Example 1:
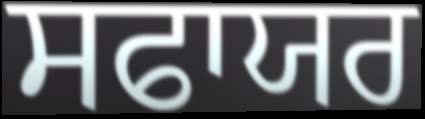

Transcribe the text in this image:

ਸਫਾਯਰ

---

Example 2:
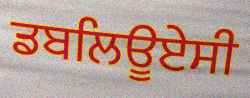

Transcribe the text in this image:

ਡਬਲਿਊਏਸੀ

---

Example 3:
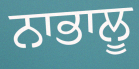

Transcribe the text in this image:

ਨਾਭਾਲੂ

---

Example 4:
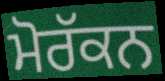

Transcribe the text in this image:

ਮੋਰੱਕਨ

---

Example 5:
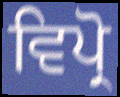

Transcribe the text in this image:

ਵਿਪ੍ਰੋ